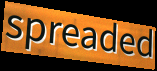
spreaded